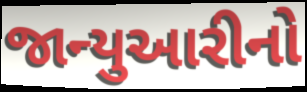
જાન્યુઆરીનો